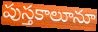
పుస్తకాలూనూ